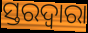
ସ୍ତରଦ୍ୱାରା